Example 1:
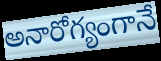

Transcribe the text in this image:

అనారోగ్యంగానే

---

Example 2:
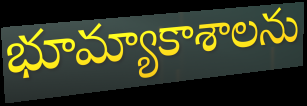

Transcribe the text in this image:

భూమ్యాకాశాలను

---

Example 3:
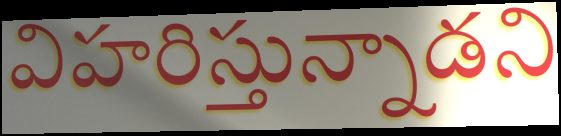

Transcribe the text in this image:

విహరిస్తున్నాడని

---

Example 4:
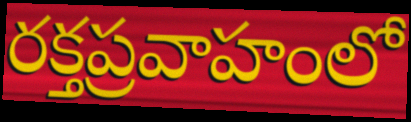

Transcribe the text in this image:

రక్తప్రవాహంలో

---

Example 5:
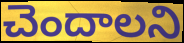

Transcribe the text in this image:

చెందాలని